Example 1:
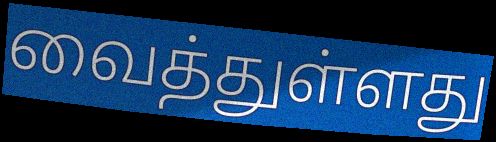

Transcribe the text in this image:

வைத்துள்ளது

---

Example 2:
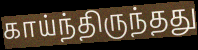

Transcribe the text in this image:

காய்ந்திருந்தது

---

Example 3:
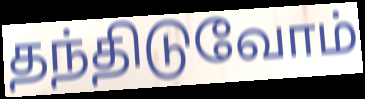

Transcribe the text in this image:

தந்திடுவோம்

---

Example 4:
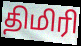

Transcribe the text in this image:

திமிரி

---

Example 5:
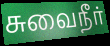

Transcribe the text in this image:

சுவைநீர்